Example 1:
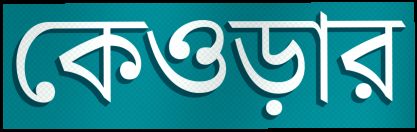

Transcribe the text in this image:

কেওড়ার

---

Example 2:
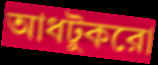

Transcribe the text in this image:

আধটুকরো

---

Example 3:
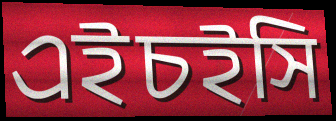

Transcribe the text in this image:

এইচইসি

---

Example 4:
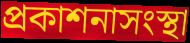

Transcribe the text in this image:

প্রকাশনাসংস্থা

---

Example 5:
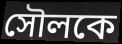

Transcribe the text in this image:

সৌলকে